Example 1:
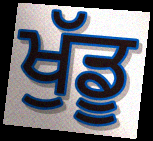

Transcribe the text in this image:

ਖੁੱਡੂ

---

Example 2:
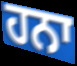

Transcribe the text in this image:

ਹਨਾ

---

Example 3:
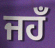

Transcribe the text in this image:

ਜਹਁ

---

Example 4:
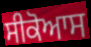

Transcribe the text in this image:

ਸੀਕੋਆਸ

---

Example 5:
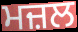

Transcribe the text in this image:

ਮਜ਼ਲ